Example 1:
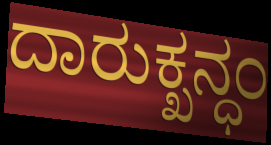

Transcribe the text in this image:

ದಾರುಕ್ಖನ್ಧಂ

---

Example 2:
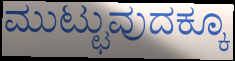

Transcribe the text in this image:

ಮುಟ್ಟುವುದಕ್ಕೂ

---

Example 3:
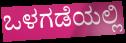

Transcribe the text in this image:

ಒಳಗಡೆಯಲ್ಲಿ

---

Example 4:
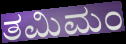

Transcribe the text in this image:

ತಮಿಮಂ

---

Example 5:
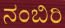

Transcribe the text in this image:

ನಂಬಿರಿ